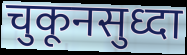
चुकूनसुध्दा